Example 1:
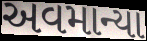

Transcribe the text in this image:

અવમાન્યા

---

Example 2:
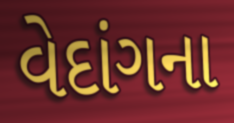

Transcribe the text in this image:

વેદાંગના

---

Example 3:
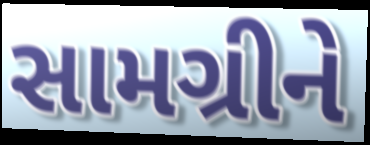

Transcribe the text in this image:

સામગ્રીને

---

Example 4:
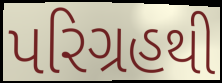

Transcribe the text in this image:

પરિગ્રહથી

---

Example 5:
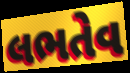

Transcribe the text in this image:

લભતેવ